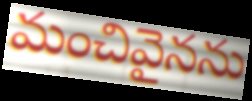
మంచివైనను